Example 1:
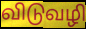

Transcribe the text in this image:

விடுவழி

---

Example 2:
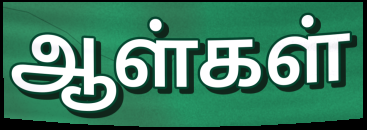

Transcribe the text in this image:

ஆள்கள்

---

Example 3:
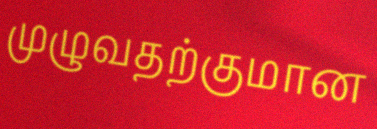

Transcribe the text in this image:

முழுவதற்குமான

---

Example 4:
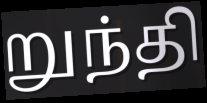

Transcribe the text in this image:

றுந்தி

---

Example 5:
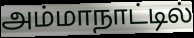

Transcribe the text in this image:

அம்மாநாட்டில்